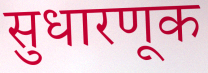
सुधारणूक